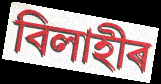
বিলাহীৰ